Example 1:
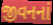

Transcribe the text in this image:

જીવનનાં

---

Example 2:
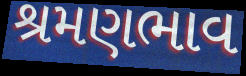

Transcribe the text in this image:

શ્રમણભાવ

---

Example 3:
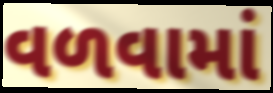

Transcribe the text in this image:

વળવામાં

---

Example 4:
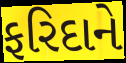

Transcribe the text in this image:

ફરિદાને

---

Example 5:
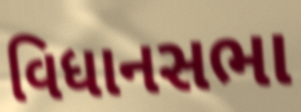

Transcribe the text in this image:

વિધાનસભા